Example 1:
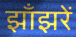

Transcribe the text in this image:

झाँझरें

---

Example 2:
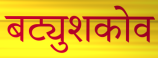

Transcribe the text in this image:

बट्युशकोव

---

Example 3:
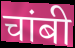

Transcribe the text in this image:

चांबी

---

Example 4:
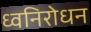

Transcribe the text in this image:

ध्वनिरोधन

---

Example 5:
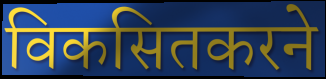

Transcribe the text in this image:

विकसितकरने